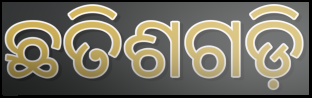
ଛତିଶଗଡ଼ି